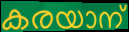
കരയാന്